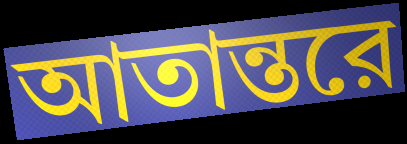
আতান্তরে